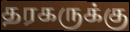
தரகருக்கு